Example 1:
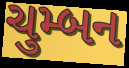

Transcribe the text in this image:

ચુમ્બન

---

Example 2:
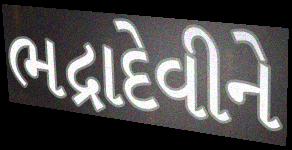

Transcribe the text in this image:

ભદ્રાદેવીને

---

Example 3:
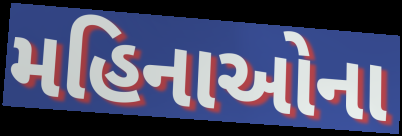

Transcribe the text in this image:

મહિનાઓના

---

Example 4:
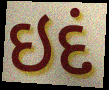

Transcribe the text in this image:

ઇદં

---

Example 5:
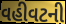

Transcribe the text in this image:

વહીવટની